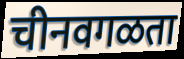
चीनवगळता